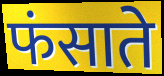
फंसाते